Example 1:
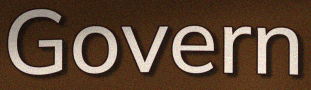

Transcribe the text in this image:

Govern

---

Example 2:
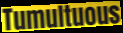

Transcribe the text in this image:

Tumultuous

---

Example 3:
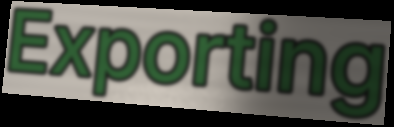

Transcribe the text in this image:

Exporting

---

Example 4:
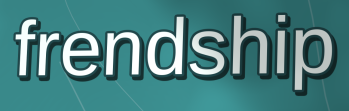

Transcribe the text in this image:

frendship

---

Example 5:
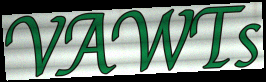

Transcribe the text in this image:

VAWTs